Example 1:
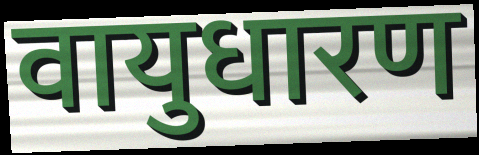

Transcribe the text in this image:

वायुधारण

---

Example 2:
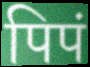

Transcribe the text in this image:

पिपं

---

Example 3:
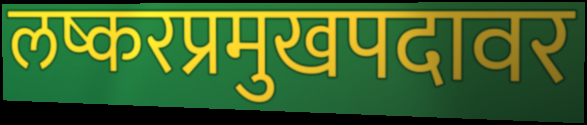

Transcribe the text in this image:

लष्करप्रमुखपदावर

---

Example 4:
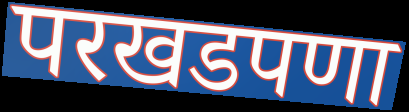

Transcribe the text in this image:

परखडपणा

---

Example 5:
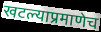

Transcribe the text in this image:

खटल्याप्रमाणेच